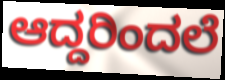
ಆದ್ದರಿಂದಲೆ